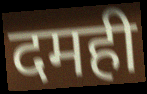
दमही